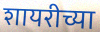
शायरीच्या